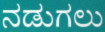
ನಡುಗಲು